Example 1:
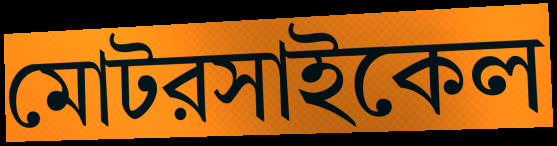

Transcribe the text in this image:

মোটরসাইকেল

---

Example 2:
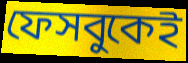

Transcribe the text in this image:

ফেসবুকেই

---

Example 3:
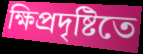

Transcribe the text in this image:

ক্ষিপ্রদৃষ্টিতে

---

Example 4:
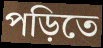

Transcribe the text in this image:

পড়িতে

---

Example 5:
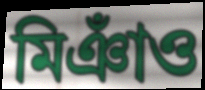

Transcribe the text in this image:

মিঞাঁও